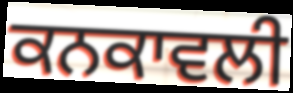
ਕਨਕਾਵਲੀ